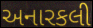
અનારકલી